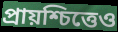
প্রায়শ্চিত্তেও